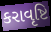
કરાવૃષ્ટિ